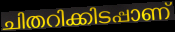
ചിതറിക്കിടപ്പാണ്